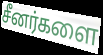
சீனர்களை